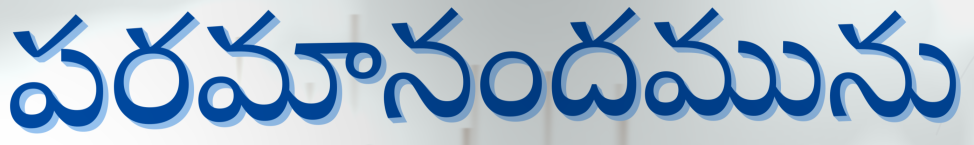
పరమానందమును